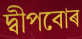
দ্বীপবোৰ